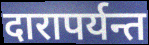
दारापर्यन्त